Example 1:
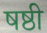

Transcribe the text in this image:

षष्ठी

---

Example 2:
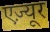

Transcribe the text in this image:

एज़्यूर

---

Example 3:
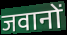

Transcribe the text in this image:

जवानों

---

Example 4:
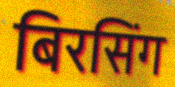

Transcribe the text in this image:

बिरसिंग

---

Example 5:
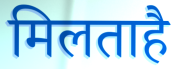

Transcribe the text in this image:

मिलताहै